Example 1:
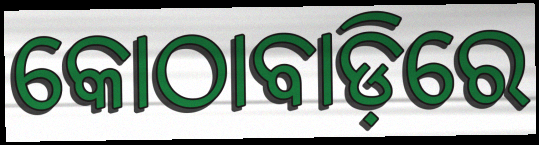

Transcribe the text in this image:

କୋଠାବାଡ଼ିରେ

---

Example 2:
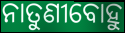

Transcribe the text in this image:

ନାତୁଣୀବୋହୁ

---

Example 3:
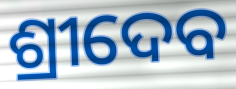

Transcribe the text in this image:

ଶ୍ରୀଦେବ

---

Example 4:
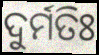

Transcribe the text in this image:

ଦୁର୍ମତିଃ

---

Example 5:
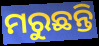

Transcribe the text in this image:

ମରୁଛନ୍ତି